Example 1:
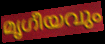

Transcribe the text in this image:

മൃഗീയവും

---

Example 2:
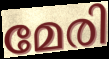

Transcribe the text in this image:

മേരി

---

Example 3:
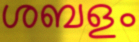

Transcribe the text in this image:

ശബളം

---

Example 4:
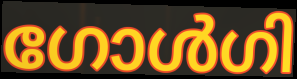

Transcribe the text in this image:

ഗോൾഗി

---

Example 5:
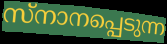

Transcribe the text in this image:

സ്നാനപ്പെടുന്ന